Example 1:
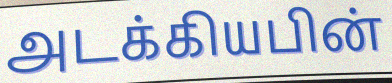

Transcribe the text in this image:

அடக்கியபின்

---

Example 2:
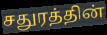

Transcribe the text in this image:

சதுரத்தின்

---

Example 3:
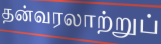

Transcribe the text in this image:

தன்வரலாற்றுப்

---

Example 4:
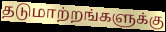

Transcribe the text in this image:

தடுமாற்றங்களுக்கு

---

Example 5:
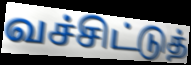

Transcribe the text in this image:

வச்சிட்டுத்